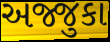
અજ્જુકા